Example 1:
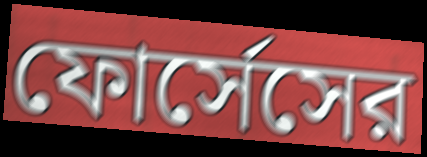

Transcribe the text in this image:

ফোর্সেসের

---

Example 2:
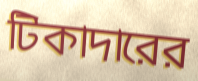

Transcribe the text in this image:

টিকাদারের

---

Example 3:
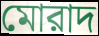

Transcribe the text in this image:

মোরাদ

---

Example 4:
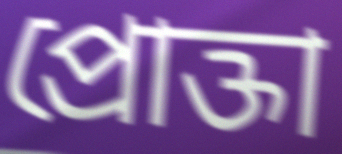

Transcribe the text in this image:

প্রোক্তা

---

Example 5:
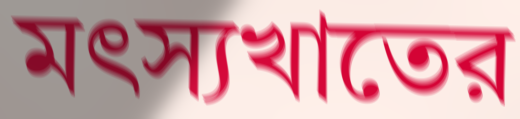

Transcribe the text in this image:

মৎস্যখাতের